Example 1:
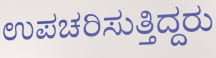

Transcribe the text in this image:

ಉಪಚರಿಸುತ್ತಿದ್ದರು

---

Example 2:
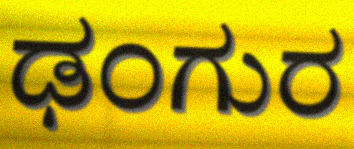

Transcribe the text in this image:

ಢಂಗುರ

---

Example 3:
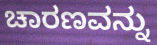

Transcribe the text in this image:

ಚಾರಣವನ್ನು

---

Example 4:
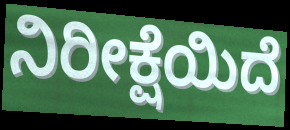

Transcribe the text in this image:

ನಿರೀಕ್ಷೆಯಿದೆ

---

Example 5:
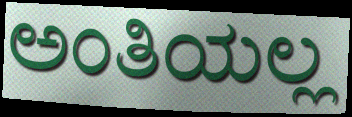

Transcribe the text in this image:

ಅಂತಿಯಲ್ಲ